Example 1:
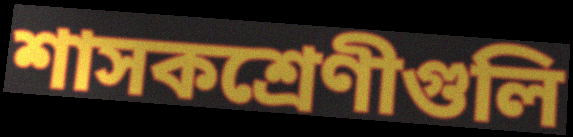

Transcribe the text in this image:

শাসকশ্রেণীগুলি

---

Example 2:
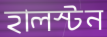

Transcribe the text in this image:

হালস্টন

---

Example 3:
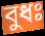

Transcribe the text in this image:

বুধঃ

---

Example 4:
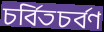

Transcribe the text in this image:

চর্বিতচর্বণ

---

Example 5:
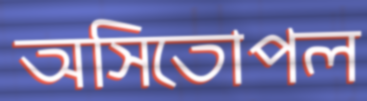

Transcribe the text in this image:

অসিতোপল